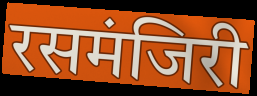
रसमंजिरी